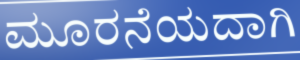
ಮೂರನೆಯದಾಗಿ